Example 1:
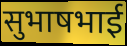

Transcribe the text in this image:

सुभाषभाई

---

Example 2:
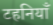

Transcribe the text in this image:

टहनियाँ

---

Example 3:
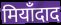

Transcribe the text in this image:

मियाँदाद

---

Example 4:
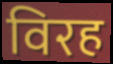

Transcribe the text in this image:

विरह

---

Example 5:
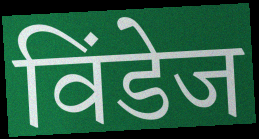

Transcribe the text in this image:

विंडेज